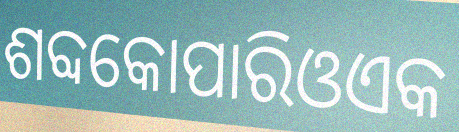
ଶବ୍ଦକୋପାରିଓଏକ